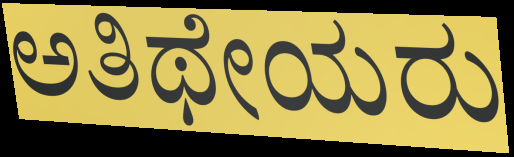
ಅತಿಥೇಯರು